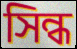
সিন্ধ